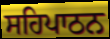
ਸਹਿਪਾਠਨ